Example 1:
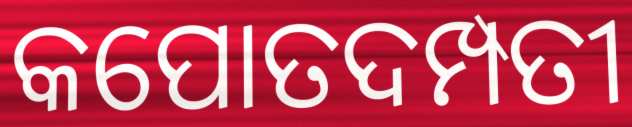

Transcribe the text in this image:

କପୋତଦମ୍ପତୀ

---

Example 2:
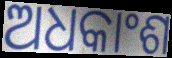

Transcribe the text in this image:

ଅଧକାଂଶ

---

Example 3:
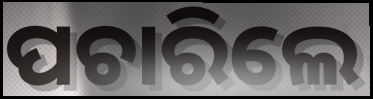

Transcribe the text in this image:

ପଚାରିଲେ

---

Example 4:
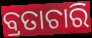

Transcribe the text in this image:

ବ୍ରତାଚାରି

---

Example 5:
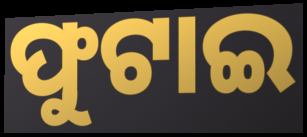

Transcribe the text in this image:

ଫୁଟାଇ